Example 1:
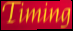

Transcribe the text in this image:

Timing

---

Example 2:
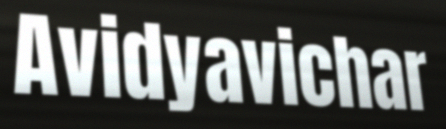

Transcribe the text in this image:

Avidyavichar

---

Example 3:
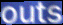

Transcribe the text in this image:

outs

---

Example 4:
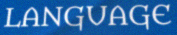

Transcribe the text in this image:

LANGUAGE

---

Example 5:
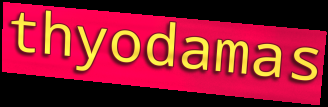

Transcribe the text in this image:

thyodamas